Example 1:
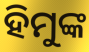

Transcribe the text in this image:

ହିମୁଙ୍କ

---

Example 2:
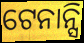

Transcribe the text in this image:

ଟେନାନ୍ସି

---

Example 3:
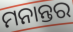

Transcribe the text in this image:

ମନାନ୍ତର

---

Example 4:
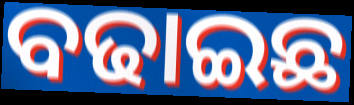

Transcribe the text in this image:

ବଢାଇଛ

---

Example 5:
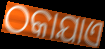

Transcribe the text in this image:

ଠକାଯାଏ